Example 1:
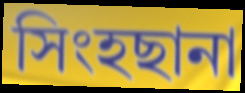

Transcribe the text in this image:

সিংহছানা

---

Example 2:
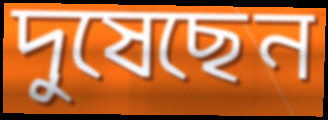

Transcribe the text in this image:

দুষেছেন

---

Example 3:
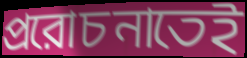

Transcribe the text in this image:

প্ররোচনাতেই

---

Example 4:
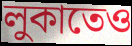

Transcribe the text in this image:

লুকাতেও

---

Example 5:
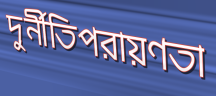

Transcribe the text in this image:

দুর্নীতিপরায়ণতা